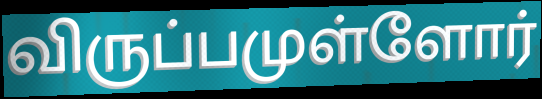
விருப்பமுள்ளோர்